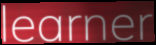
learner